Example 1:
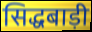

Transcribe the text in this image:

सिद्धबाड़ी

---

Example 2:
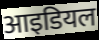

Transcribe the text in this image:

आइडियल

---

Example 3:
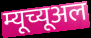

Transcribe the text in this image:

म्यूच्यूअल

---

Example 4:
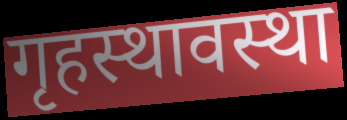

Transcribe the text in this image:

गृहस्थावस्था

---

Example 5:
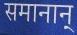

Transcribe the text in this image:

समानान्